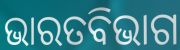
ଭାରତବିଭାଗ